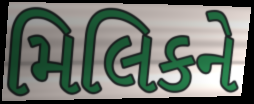
મિલિકને